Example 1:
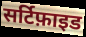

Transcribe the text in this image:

सर्टिफ़ाइड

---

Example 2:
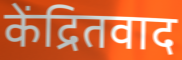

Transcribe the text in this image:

केंद्रितवाद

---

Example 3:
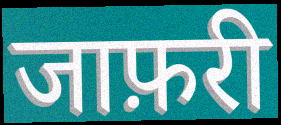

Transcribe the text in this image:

जाफ़री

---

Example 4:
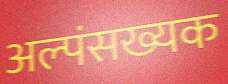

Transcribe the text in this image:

अल्पंसख्यक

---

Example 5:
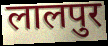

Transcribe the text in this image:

लालपुर